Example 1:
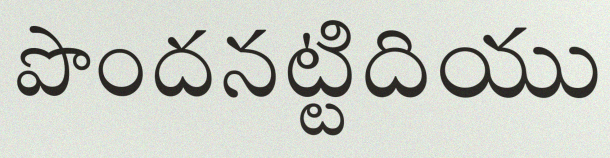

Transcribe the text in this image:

పొందనట్టిదియు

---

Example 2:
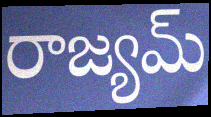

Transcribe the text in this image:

రాజ్యమ్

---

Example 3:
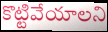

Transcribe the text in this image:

కొట్టివేయాలని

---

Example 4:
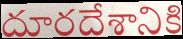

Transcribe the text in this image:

దూరదేశానికి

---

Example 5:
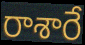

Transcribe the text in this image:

రాశారే